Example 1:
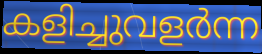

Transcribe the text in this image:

കളിച്ചുവളർന്ന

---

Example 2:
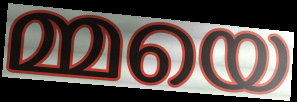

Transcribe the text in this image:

മ്മയെ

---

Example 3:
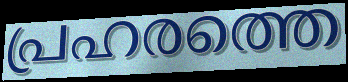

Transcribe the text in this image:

പ്രഹരത്തെ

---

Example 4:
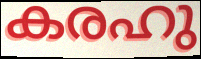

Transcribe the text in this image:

കരഹു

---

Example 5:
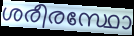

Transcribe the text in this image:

ശരീരസ്ഥോ